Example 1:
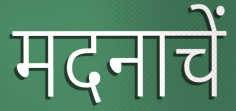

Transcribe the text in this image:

मदनाचें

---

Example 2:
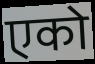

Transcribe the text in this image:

एको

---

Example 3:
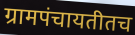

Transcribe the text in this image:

ग्रामपंचायतीतच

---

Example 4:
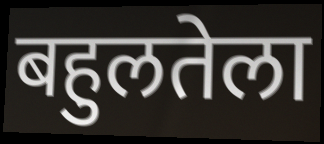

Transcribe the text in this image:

बहुलतेला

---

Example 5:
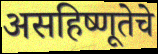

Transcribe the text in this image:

असहिष्णूतेचे